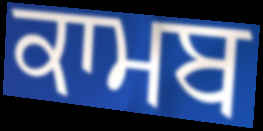
ਕਾਮਬ